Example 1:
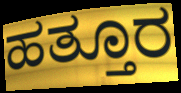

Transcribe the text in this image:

ಹತ್ತೂರ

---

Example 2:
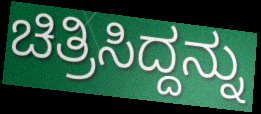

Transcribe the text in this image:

ಚಿತ್ರಿಸಿದ್ದನ್ನು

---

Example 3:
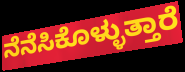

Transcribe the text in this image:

ನೆನೆಸಿಕೊಳ್ಳುತ್ತಾರೆ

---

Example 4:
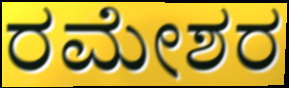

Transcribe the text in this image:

ರಮೇಶರ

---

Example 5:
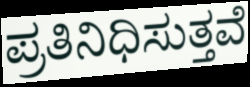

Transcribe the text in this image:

ಪ್ರತಿನಿಧಿಸುತ್ತವೆ